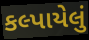
કલ્પાયેલું